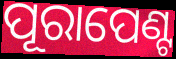
ପୂରାପେଣ୍ଟ